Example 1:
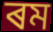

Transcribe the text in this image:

ৰম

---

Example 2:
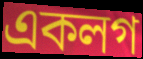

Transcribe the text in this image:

একলগ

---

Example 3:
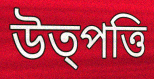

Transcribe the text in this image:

উত্পত্তি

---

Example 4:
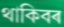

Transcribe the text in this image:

থাকিবৰ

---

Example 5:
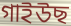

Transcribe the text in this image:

গাইউছ